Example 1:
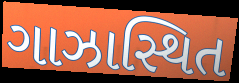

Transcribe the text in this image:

ગાઝાસ્થિત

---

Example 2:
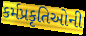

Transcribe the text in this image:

કર્મપ્રકૃતિઓની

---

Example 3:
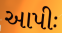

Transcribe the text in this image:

આપીઃ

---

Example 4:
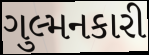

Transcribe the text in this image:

ગુલ્મનકારી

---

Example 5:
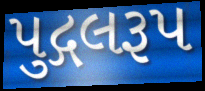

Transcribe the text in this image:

પુદ્ગલરૂપ